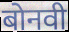
बोनवी